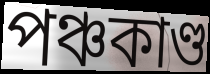
পঞ্চকাণ্ড